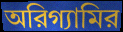
অরিগ্যামির